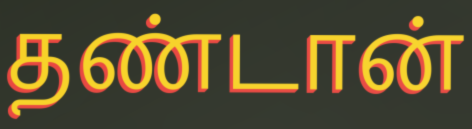
தண்டான்